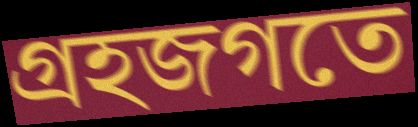
গ্রহজগতে